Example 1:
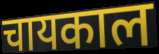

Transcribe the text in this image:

चायकाल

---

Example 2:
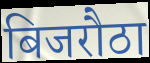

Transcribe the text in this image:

बिजरौठा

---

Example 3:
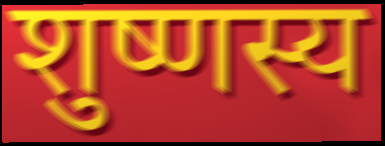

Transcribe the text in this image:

शुष्णस्य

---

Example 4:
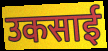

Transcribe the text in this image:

उकसाई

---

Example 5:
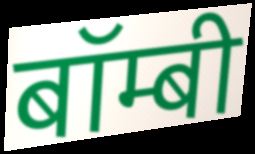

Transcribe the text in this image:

बॉम्बी